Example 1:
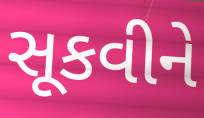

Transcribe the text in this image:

સૂકવીને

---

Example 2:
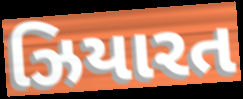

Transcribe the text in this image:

ઝિયારત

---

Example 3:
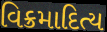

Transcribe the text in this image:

વિક્રમાદિત્‍ય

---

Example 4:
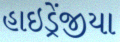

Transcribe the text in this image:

હાઇડ્રેંજીયા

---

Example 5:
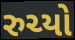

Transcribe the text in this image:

રુચ્યો